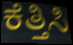
ಕೆತ್ತಿಸಿ